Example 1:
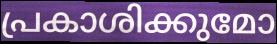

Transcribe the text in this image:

പ്രകാശിക്കുമോ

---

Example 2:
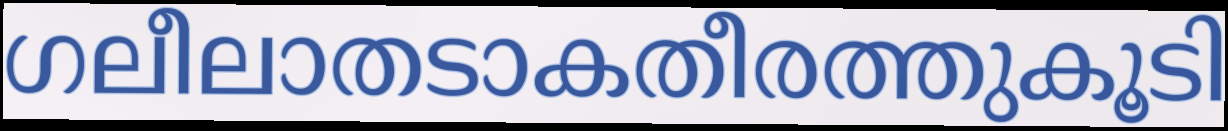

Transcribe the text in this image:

ഗലീലാതടാകതീരത്തുകൂടി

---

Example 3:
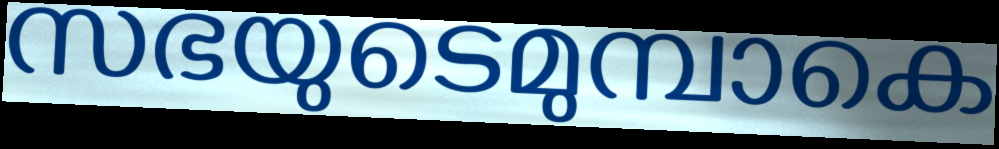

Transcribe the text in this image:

സഭയുടെമുമ്പാകെ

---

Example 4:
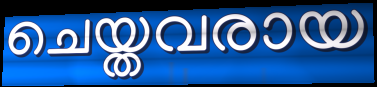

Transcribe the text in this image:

ചെയ്തവരായ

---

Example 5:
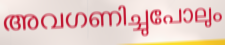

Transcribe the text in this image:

അവഗണിച്ചുപോലും